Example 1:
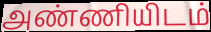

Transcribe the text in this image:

அண்ணியிடம்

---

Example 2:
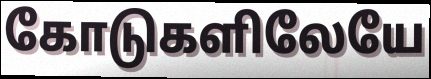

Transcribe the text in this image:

கோடுகளிலேயே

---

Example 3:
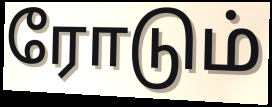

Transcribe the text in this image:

ரோடும்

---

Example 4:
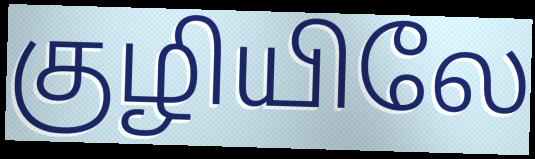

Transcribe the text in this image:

குழியிலே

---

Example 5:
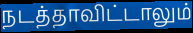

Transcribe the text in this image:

நடத்தாவிட்டாலும்